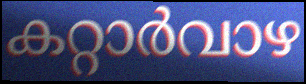
കറ്റാർവാഴ